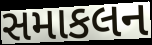
સમાકલન